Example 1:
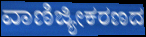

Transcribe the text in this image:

ವಾಣಿಜ್ಯೀಕರಣದ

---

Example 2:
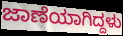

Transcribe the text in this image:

ಜಾಣೆಯಾಗಿದ್ದಳು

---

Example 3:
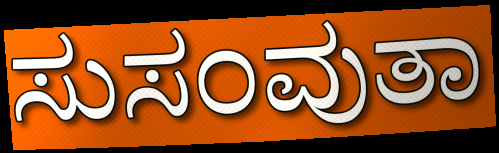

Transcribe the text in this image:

ಸುಸಂವುತಾ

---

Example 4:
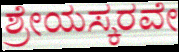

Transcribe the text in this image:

ಶ್ರೇಯಸ್ಕರವೇ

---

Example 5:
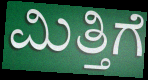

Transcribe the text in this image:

ಮಿತ್ತಿಗೆ